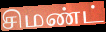
சிமண்ட்